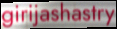
girijashastry